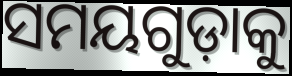
ସମୟଗୁଡ଼ାକୁ